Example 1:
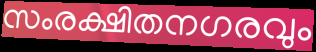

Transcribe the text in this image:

സംരക്ഷിതനഗരവും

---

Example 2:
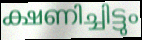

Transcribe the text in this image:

ക്ഷണിച്ചിട്ടും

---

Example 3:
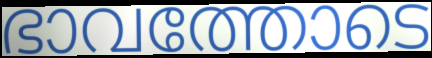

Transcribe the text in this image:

ഭാവത്തോടെ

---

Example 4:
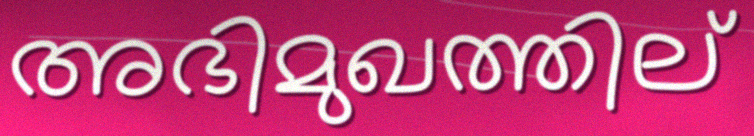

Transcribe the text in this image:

അഭിമുഖത്തില്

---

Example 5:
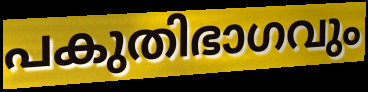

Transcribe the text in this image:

പകുതിഭാഗവും